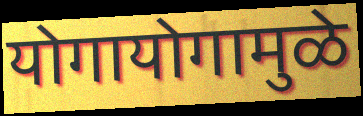
योगायोगामुळे